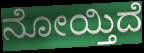
ನೋಯ್ತಿದೆ